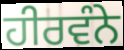
ਹੀਰਵੰਨੇ